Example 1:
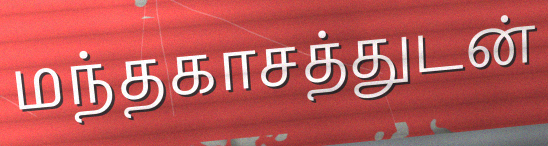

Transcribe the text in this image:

மந்தகாசத்துடன்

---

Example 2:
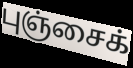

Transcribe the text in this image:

புஞ்சைக்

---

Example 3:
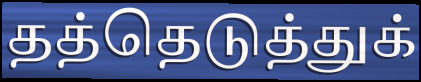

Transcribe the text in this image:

தத்தெடுத்துக்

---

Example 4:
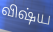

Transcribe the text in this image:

விஷ்ய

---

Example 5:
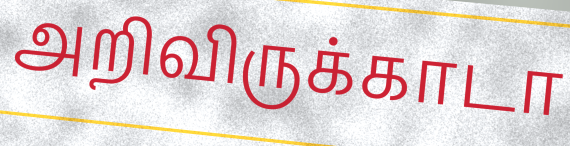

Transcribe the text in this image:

அறிவிருக்காடா